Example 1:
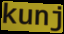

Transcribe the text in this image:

kunj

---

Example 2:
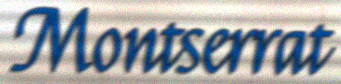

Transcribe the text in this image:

Montserrat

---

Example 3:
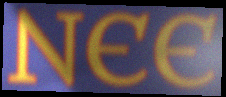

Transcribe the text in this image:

NEE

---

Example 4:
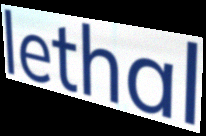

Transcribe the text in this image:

lethal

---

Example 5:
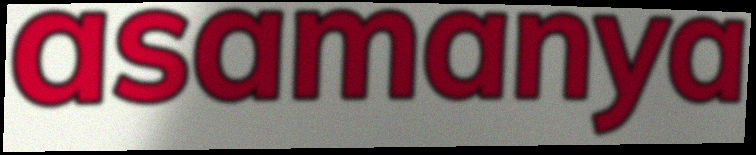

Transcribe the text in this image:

asamanya